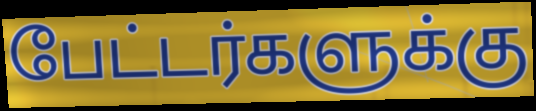
பேட்டர்களுக்கு